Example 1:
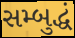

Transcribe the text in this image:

સમ્બુદ્ધં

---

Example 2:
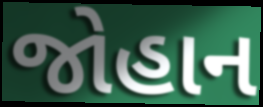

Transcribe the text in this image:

જોહાન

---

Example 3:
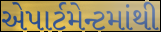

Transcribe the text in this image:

એપાર્ટમેન્ટમાંથી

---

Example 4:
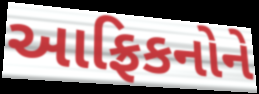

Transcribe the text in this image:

આફ્રિકનોને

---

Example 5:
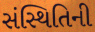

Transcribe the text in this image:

સંસ્થિતિની